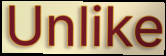
Unlike